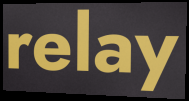
relay